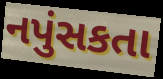
નપુંસકતા